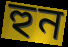
হুন